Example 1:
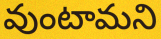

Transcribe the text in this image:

వుంటామని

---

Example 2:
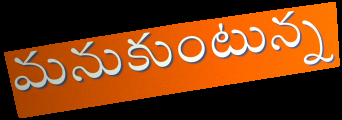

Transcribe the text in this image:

మనుకుంటున్న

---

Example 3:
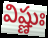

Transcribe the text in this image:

విష్ణుః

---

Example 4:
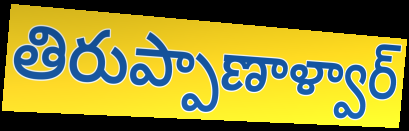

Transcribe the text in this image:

తిరుప్పాణాళ్వార్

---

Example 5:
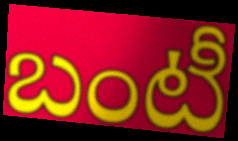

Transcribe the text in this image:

బంటీ